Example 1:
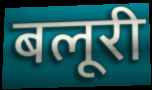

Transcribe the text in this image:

बलूरी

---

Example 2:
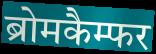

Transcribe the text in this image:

ब्रोमकैम्फर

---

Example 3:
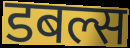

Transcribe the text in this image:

डबल्‍स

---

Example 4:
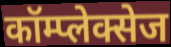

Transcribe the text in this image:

कॉम्प्लेक्सेज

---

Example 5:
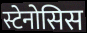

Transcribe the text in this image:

स्टेनोसिस